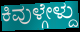
ಕಿವುಳ್ಗೇಳ್ದು